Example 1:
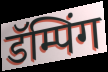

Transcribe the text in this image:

डॅम्पिंग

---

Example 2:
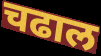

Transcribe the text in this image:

चढाल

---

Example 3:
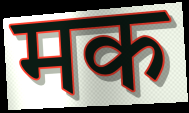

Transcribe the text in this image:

मक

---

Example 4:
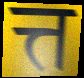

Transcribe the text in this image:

त्त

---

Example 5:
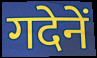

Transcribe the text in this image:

गदेनें